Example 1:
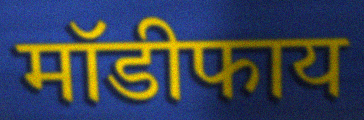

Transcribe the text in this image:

मॉडीफाय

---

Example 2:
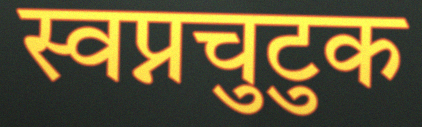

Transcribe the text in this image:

स्वप्नचुटुक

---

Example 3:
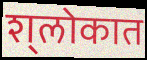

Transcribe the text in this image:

श्लोकात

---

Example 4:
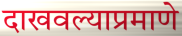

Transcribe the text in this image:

दाखवल्याप्रमाणे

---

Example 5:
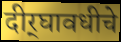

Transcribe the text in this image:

दीर्घावधीचे